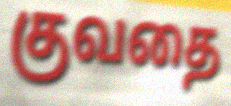
குவதை